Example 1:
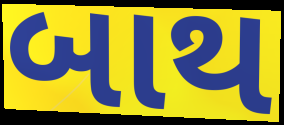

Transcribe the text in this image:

બાથ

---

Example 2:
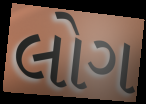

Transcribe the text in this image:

લોગ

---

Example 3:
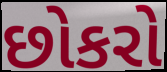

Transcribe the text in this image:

છોકરો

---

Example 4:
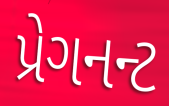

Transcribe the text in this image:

પ્રેગનન્ટ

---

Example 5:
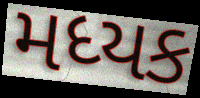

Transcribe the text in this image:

મધ્યક